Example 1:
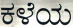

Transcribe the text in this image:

ಕಳೆಯ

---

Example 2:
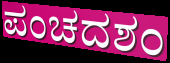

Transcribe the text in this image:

ಪಂಚದಶಂ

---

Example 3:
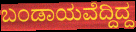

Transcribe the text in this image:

ಬಂಡಾಯವೆದ್ದಿದ್ದ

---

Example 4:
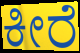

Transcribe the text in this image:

ಕೀರೆ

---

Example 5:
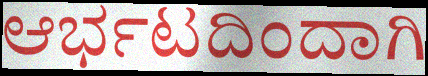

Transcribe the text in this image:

ಆರ್ಭಟದಿಂದಾಗಿ